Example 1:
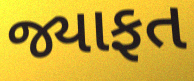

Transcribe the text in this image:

જ્યાફત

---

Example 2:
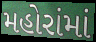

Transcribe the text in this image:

મહોરાંમાં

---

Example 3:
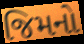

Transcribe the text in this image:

જિમનો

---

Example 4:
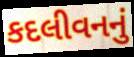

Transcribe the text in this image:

કદલીવનનું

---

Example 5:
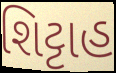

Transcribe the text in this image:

શિટ્ટાહ